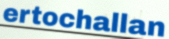
ertochallan